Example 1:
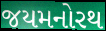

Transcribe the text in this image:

જયમનોરથ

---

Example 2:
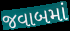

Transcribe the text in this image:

જવાબમાં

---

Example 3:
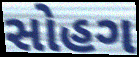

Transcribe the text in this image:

સોહગ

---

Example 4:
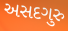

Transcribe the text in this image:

અસદગુરુ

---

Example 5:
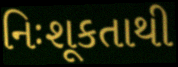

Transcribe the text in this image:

નિઃશૂકતાથી